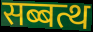
सब्बत्थ